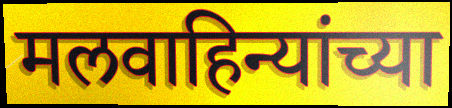
मलवाहिन्यांच्या